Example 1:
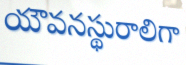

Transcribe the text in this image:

యౌవనస్థురాలిగా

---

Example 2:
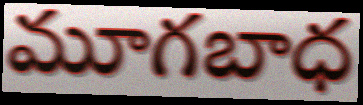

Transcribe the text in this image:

మూగబాధ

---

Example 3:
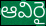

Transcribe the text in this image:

ఆవిరై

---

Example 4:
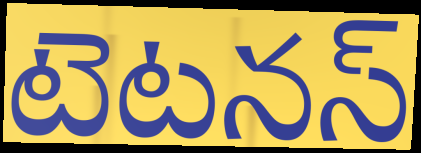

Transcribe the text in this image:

టెటనస్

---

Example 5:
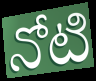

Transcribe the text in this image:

నోటి